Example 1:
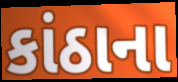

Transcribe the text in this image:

કાંઠાના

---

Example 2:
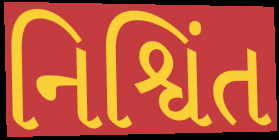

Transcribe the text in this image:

નિશ્વિંત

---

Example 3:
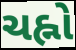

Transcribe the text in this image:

ચહ્નો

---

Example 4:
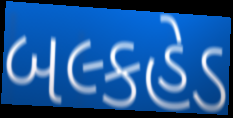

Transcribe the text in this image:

બલ્કહેડ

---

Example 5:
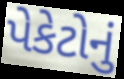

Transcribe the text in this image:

પેકેટોનું